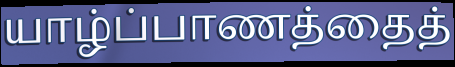
யாழ்ப்பாணத்தைத்